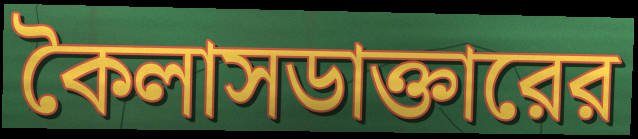
কৈলাসডাক্তারের